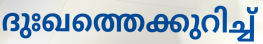
ദുഃഖത്തെക്കുറിച്ച്